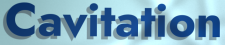
Cavitation